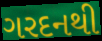
ગરદનથી